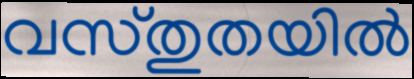
വസ്തുതയിൽ